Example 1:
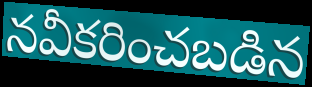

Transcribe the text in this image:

నవీకరించబడిన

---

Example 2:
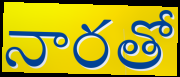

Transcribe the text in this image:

నారతో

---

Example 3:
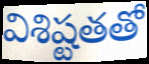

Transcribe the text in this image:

విశిష్టతతో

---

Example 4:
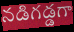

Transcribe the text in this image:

నడిగడ్డగా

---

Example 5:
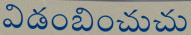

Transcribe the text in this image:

విడంబించుచు